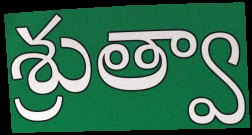
శ్రుత్వా